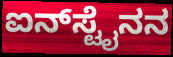
ಐನ್‌ಸ್ಟೈನನ